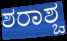
ಶರಾಶ್ಚ